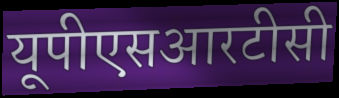
यूपीएसआरटीसी